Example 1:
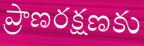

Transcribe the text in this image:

ప్రాణరక్షణకు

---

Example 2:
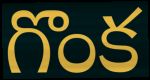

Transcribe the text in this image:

గొంక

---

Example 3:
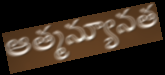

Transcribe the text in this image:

ఆత్మన్యూనత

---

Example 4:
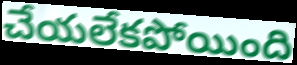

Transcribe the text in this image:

చేయలేకపోయింది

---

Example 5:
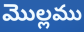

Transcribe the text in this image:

మొల్లము